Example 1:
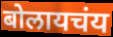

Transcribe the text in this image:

बोलायचंय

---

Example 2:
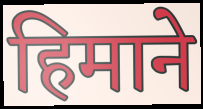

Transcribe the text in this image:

हिमाने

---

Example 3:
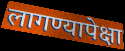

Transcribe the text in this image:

लागण्यापेक्षा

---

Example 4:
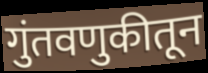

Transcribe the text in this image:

गुंतवणुकीतून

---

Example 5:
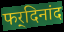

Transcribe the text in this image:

फर्दिनांद